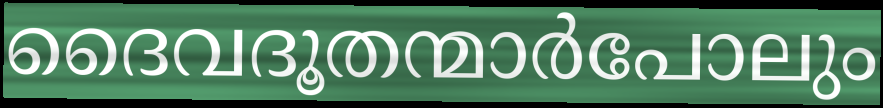
ദൈവദൂതന്മാർപോലും